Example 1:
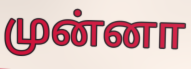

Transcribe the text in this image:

முன்னா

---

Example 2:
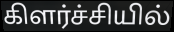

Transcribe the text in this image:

கிளர்ச்சியில்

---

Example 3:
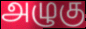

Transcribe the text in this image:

அழுகு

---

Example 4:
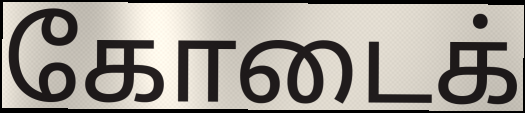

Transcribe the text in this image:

கோடைக்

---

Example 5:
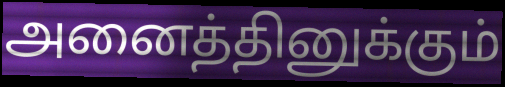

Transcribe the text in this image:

அனைத்தினுக்கும்